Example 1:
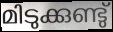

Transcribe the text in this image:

മിടുക്കുണ്ടു്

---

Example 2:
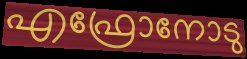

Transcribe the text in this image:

എഫ്രോനോടു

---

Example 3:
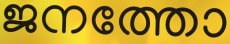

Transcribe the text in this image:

ജനത്തോ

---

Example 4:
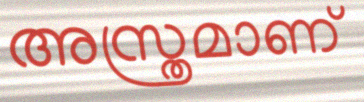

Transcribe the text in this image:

അസ്ത്രമാണ്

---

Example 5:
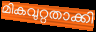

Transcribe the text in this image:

മികവുറ്റതാക്കി